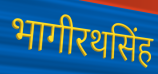
भागीरथसिंह